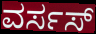
ವರ್ಸಸ್